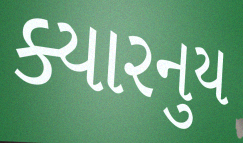
ક્યારનુય